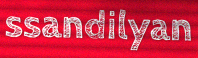
ssandilyan